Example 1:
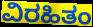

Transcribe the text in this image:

ವಿರಹಿತಂ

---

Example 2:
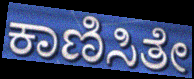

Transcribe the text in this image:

ಕಾಣಿಸಿತೇ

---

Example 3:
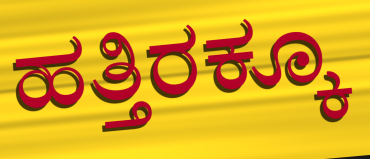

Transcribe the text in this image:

ಹತ್ತಿರಕ್ಕೂ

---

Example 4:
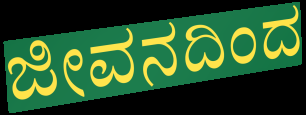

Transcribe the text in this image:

ಜೀವನದಿಂದ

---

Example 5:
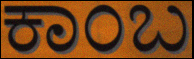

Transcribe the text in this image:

ಕಾಂಬ